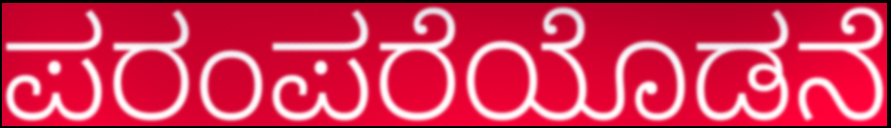
ಪರಂಪರೆಯೊಡನೆ